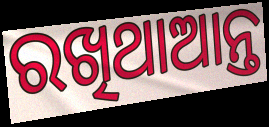
ରଖିଥାଆନ୍ତ